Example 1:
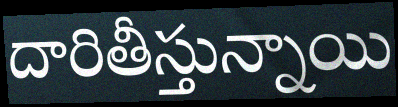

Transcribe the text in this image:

దారితీస్తున్నాయి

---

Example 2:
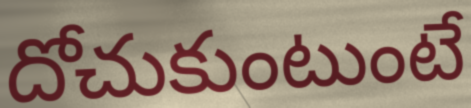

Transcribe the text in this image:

దోచుకుంటుంటే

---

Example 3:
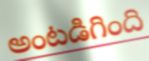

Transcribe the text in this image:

అంటడిగింది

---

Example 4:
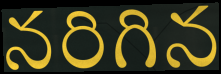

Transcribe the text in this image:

నరిగిన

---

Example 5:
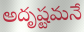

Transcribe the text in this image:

అదృష్టమనే